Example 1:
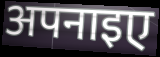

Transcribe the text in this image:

अपनाइए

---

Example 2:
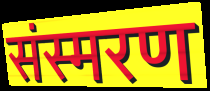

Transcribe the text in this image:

संस्मरण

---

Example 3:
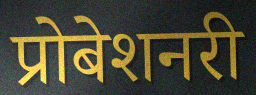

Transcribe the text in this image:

प्रोबेशनरी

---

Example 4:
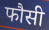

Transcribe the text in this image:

फौसी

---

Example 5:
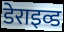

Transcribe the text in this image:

डेराइव्ड